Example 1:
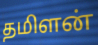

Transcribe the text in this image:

தமிளன்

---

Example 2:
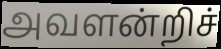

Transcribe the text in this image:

அவளன்றிச்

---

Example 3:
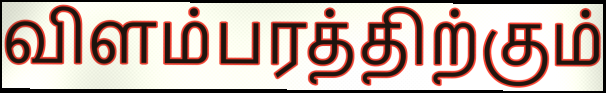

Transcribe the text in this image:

விளம்பரத்திற்கும்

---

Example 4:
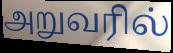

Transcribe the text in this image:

அறுவரில்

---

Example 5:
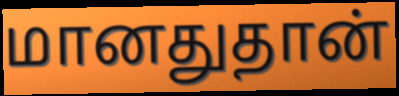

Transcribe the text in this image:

மானதுதான்